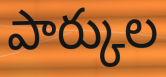
పార్కుల